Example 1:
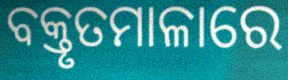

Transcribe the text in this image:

ବକ୍ତୃତମାଳାରେ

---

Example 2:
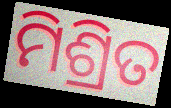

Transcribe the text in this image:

ମିଶ୍ରିତ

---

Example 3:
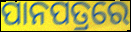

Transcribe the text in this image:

ପାନପତ୍ରରେ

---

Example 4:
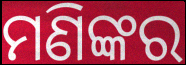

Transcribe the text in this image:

ମଣିଙ୍କର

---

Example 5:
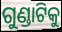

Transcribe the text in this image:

ଗୁଣ୍ଡାଟିକୁ